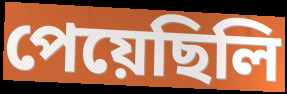
পেয়েছিলি